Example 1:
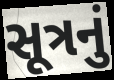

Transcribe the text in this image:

સૂત્રનું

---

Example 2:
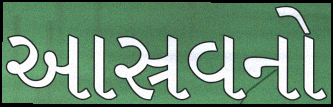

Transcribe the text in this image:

આસ્રવનો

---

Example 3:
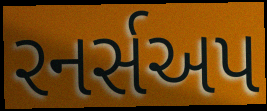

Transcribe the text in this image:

રનર્સઅપ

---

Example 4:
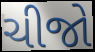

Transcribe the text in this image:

ચીજો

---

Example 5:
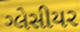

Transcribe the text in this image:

ગ્લેસીયર